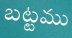
బట్టము